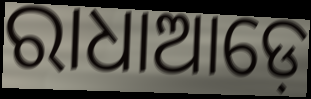
ରାଧାଆଡ଼େ